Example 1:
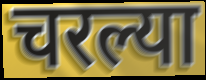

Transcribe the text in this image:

चरल्या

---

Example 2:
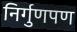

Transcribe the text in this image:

निर्गुणपण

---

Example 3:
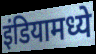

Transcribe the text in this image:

इंडियामध्ये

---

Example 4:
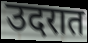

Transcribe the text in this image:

उदरात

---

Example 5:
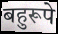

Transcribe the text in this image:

बहुरूपे